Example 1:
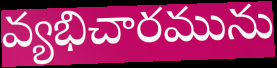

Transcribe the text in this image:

వ్యభిచారమును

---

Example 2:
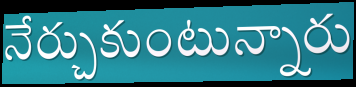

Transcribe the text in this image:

నేర్చుకుంటున్నారు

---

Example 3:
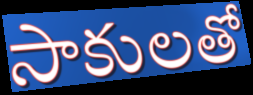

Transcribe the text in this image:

సాకులతో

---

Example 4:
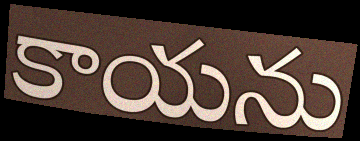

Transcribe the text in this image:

కాయను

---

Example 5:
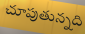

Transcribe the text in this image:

చూపుతున్నది